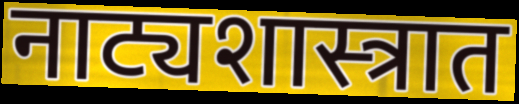
नाट्यशास्त्रात